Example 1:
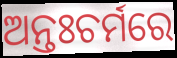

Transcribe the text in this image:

ଅନ୍ତଃଚର୍ମରେ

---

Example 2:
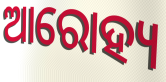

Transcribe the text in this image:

ଆରୋହ୍ୟ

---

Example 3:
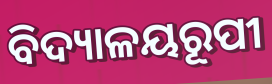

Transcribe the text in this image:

ବିଦ୍ୟାଳୟରୂପୀ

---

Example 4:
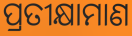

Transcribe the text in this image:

ପ୍ରତୀକ୍ଷାମାଣ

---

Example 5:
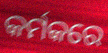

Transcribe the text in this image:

କର୍ମକରେ